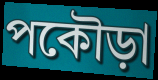
পকৌড়া